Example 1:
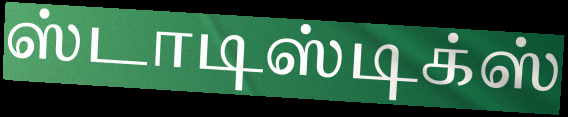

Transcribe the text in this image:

ஸ்டாடிஸ்டிக்ஸ்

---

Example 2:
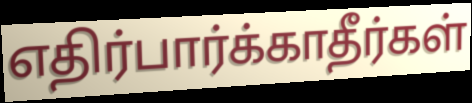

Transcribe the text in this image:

எதிர்பார்க்காதீர்கள்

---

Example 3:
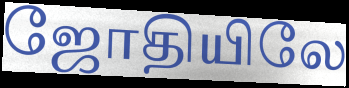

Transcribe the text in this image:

ஜோதியிலே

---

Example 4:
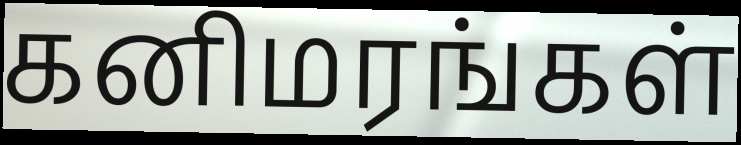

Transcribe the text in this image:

கனிமரங்கள்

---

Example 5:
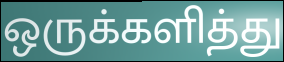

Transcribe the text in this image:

ஒருக்களித்து